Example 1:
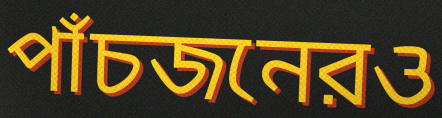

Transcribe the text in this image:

পাঁচজনেরও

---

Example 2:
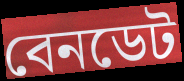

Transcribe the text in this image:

বেনডেট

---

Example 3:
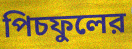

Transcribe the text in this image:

পিচফুলের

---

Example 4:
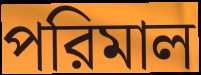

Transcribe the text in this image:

পরিমাল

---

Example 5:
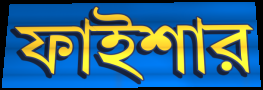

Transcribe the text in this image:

ফাইশার